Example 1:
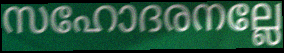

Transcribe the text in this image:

സഹോദരനല്ലേ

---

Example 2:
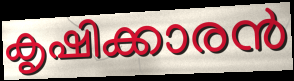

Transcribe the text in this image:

കൃഷിക്കാരൻ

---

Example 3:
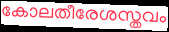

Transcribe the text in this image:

കോലതീരേശസ്തവം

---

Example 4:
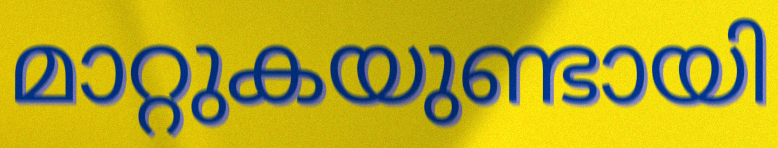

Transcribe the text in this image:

മാറ്റുകയുണ്ടായി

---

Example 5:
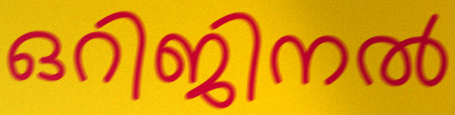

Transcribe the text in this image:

ഒറിജിനൽ